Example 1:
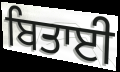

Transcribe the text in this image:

ਬਿਤਾਈ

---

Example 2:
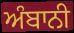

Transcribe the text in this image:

ਅੰਬਾਨੀ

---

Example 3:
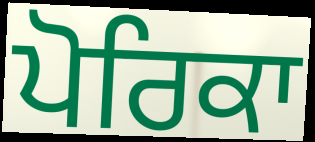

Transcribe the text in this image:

ਪੋਰਿਕਾ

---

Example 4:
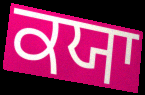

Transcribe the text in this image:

ਕਯਾ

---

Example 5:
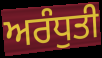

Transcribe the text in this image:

ਅਰੰਧੁਤੀ